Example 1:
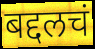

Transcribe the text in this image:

बद्दलचं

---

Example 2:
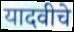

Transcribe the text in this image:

यादवीचे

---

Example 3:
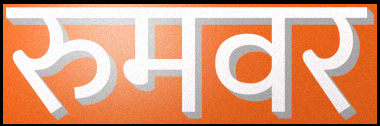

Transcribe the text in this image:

रुमवर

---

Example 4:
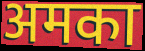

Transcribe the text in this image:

अमका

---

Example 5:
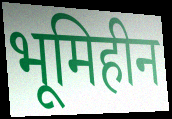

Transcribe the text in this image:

भूमिहीन